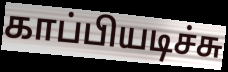
காப்பியடிச்சு